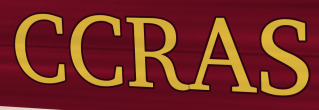
CCRAS